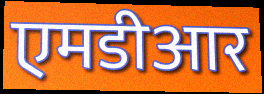
एमडीआर